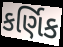
કર્ણિક